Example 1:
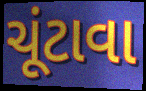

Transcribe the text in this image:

ચૂંટાવા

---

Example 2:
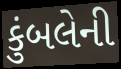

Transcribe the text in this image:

કુંબલેની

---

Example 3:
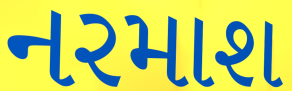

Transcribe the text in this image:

નરમાશ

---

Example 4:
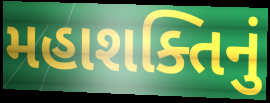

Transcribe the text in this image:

મહાશક્તિનું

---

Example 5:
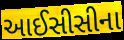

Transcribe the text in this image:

આઈસીસીના